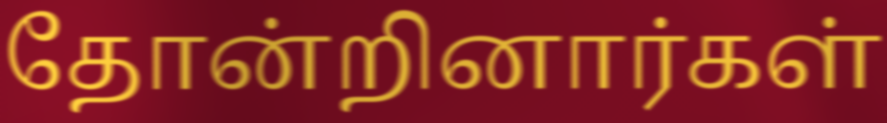
தோன்றினார்கள்